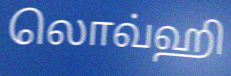
லொவ்ஹி